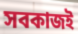
সবকাজই